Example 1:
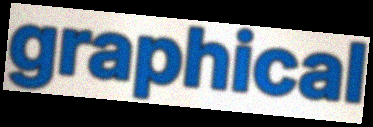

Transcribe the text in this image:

graphical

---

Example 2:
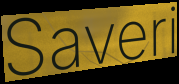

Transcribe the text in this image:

Saveri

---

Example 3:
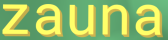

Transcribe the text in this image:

zauna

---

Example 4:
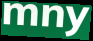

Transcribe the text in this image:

mny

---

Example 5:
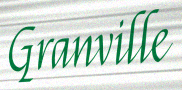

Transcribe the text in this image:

Granville